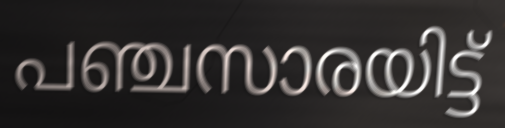
പഞ്ചസാരയിട്ട്